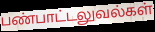
பண்பாட்டலுவல்கள்